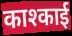
काश्काई